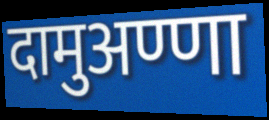
दामुअण्णा